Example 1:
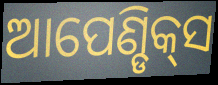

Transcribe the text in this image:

ଆପେଣ୍ଡିକ୍‌ସ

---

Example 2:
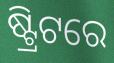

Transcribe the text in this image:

ଷ୍ଟ୍ରିଟରେ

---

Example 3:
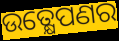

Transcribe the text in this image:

ଉତ୍କ୍ଷେପଣର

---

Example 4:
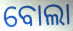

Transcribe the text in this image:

ବୋଲା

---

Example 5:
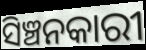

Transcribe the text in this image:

ସିଞ୍ଚନକାରୀ